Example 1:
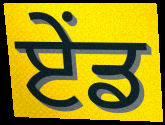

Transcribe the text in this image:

ਏੰਡ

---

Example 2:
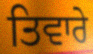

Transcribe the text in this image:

ਤਿਵਾਰੇ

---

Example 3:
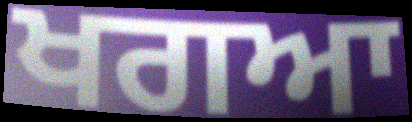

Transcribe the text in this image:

ਖਗਆ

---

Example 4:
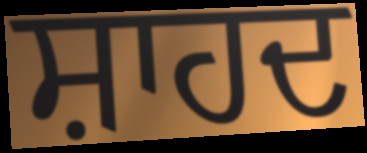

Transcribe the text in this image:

ਸ਼ਾਹਦ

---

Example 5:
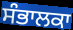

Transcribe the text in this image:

ਸੰਭਾਲਕਾ